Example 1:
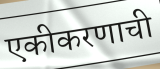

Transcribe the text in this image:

एकीकरणाची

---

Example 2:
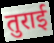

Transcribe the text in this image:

तुराई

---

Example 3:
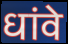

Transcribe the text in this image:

धांवे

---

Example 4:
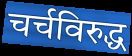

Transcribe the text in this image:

चर्चविरुद्ध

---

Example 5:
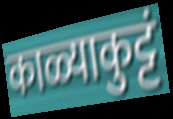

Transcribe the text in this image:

काळ्याकुट्टं